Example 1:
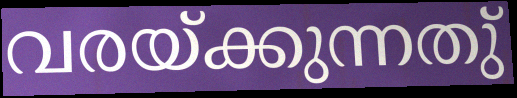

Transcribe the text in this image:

വരയ്ക്കുന്നതു്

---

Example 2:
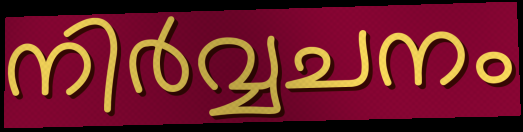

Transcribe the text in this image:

നിർവ്വചനം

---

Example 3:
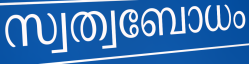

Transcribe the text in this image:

സ്വത്വബോധം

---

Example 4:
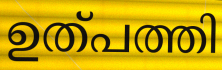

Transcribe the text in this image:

ഉത്പത്തി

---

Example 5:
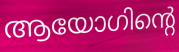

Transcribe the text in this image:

ആയോഗിന്റെ